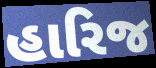
હારિજ